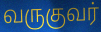
வருகுவர்